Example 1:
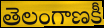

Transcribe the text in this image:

తెలంగాణకీ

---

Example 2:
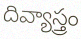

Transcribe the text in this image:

దివ్యాస్త్రం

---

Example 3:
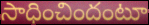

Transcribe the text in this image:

సాధించిందంటూ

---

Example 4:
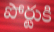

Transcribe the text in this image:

పోర్టుకి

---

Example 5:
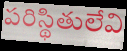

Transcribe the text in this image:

పరిస్థితులేవి